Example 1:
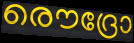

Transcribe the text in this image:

രൌദ്രോ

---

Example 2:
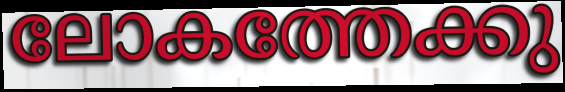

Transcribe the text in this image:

ലോകത്തേക്കു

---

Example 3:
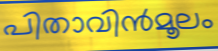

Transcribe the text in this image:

പിതാവിൻമൂലം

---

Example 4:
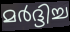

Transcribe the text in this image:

മർദ്ദിച്ച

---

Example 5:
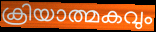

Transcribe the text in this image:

ക്രിയാത്മകവും